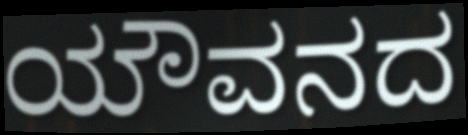
ಯೌವನದ